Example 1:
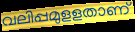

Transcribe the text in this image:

വലിപ്പമുളളതാണ്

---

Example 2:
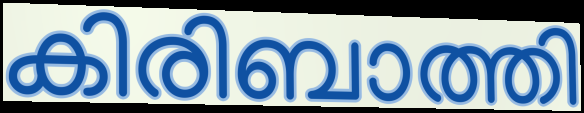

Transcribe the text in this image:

കിരിബാത്തി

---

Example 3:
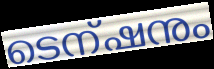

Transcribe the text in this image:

ടെന്ഷനും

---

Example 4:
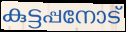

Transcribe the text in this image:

കുട്ടപ്പനോട്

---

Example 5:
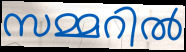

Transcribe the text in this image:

സമ്മറിൽ